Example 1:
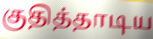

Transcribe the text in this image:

குதித்தாடிய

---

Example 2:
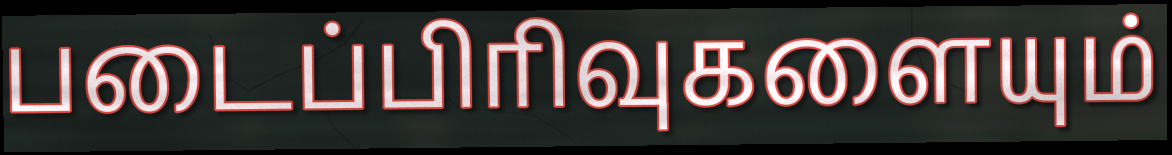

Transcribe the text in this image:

படைப்பிரிவுகளையும்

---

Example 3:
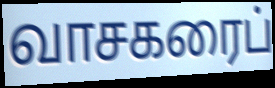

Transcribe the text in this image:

வாசகரைப்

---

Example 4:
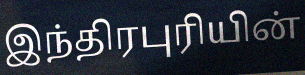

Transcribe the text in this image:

இந்திரபுரியின்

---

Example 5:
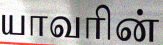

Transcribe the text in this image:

யாவரின்